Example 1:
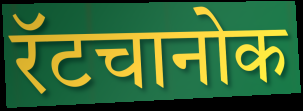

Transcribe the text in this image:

रॅटचानोक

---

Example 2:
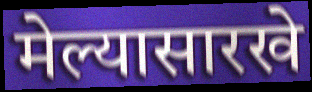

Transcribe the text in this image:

मेल्यासारखे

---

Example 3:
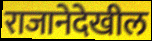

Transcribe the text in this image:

राजानेदेखील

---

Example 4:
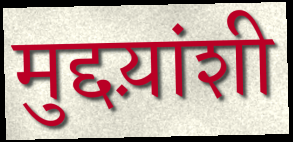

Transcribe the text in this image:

मुद्दय़ांशी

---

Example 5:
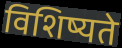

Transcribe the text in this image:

विशिष्यते